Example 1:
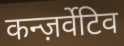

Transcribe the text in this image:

कन्ज़र्वेटिव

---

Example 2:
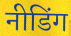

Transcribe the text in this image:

नीडिंग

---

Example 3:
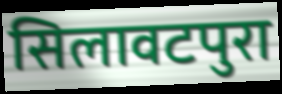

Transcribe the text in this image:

सिलावटपुरा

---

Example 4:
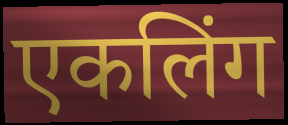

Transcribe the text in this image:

एकलिंग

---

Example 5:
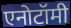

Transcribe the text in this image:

एनोटॉमी